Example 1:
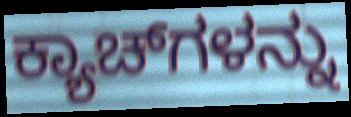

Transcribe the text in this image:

ಕ್ಯಾಚ್‌ಗಳನ್ನು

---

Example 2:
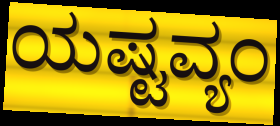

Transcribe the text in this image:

ಯಷ್ಟವ್ಯಂ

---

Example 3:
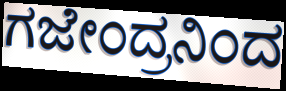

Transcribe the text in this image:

ಗಜೇಂದ್ರನಿಂದ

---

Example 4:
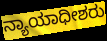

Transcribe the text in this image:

ನ್ಯಾಯಾಧೀಶರು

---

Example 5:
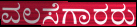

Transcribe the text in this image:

ವಲಸೆಗಾರರು